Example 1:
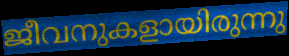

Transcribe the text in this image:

ജീവനുകളായിരുന്നു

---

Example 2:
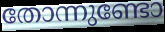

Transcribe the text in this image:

തോന്നുണ്ടോ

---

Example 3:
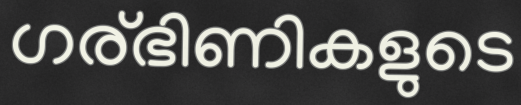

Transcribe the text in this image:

ഗര്ഭിണികളുടെ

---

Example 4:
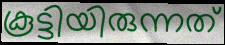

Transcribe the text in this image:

കൂട്ടിയിരുന്നത്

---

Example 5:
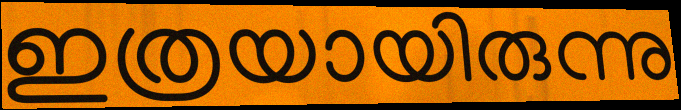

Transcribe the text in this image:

ഇത്രയായിരുന്നു